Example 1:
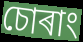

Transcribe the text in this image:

চোৰাং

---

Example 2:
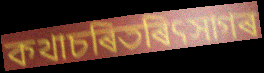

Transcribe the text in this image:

কথাচৰিতৰিৎসাগৰ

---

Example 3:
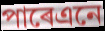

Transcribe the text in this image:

পাৰেএনে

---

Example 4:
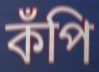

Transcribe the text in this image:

কঁপি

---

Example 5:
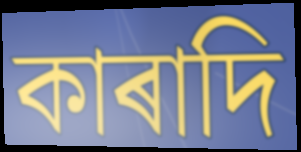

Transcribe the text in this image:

কাৰাদি